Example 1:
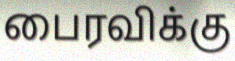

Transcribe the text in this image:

பைரவிக்கு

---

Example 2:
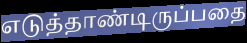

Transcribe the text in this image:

எடுத்தாண்டிருப்பதை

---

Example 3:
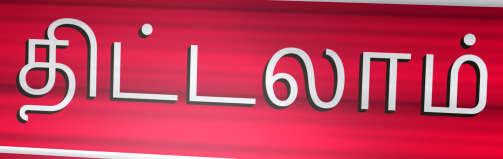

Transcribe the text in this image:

திட்டலாம்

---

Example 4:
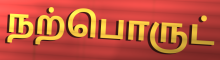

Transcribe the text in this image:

நற்பொருட்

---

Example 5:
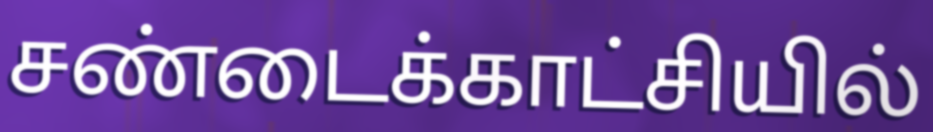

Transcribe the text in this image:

சண்டைக்காட்சியில்